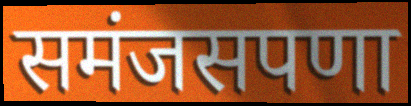
समंजसपणा